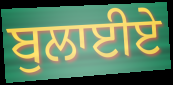
ਬੁਲਾਈਏ